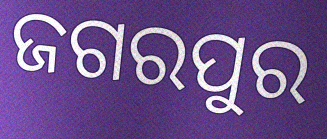
ଜଗରପୁର